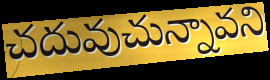
చదువుచున్నావని